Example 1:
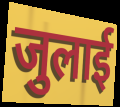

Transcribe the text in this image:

जुलाई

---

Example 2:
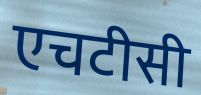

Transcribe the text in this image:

एचटीसी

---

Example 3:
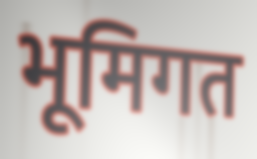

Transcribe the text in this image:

भूमिगत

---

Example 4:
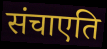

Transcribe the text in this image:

संचाएति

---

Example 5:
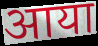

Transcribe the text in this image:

आया